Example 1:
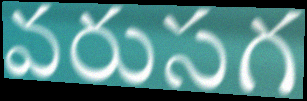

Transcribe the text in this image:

వరుసగ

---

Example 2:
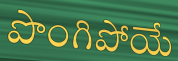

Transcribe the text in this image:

పొంగిపోయే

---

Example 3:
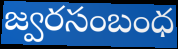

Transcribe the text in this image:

జ్వరసంబంధ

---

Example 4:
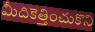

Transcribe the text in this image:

మీదికెత్తించుకొని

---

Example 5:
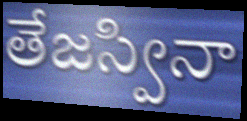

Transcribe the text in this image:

తేజస్వినా